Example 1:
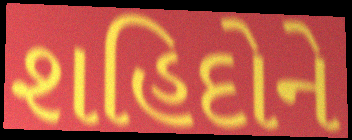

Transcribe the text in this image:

શહિદોને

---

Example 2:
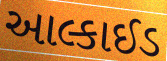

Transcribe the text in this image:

આલ્કાઈડ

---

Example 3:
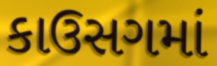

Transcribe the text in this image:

કાઉસગમાં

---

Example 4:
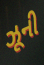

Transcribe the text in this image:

ઝૂની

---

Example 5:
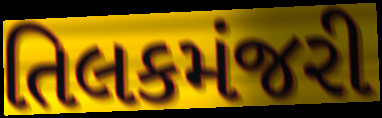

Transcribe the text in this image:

તિલકમંજરી